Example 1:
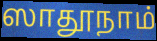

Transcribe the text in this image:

ஸாதூநாம்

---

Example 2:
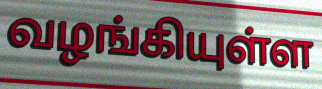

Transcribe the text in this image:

வழங்கியுள்ள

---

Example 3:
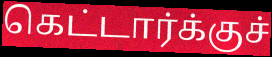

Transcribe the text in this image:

கெட்டார்க்குச்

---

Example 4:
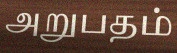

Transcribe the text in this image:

அறுபதம்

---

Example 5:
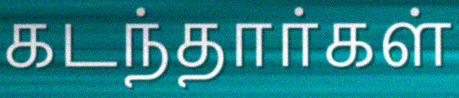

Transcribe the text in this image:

கடந்தார்கள்